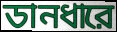
ডানধারে